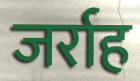
जर्राह